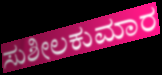
ಸುಶೀಲಕುಮಾರ